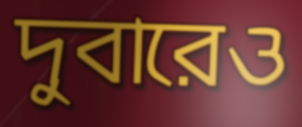
দুবারেও